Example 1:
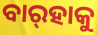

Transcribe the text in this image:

ବାର୍‍ହାକୁ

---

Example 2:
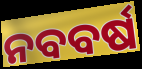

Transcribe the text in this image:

ନବବର୍ଷ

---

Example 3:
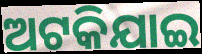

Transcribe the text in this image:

ଅଟକିଯାଇ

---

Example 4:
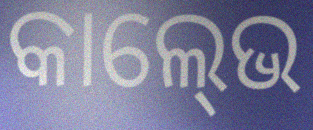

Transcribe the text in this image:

କାଲ୍‍ଭେ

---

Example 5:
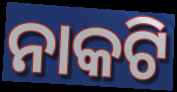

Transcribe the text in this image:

ନାକଟି